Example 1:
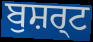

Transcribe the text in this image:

ਬੁਸ਼ਰ੍ਟ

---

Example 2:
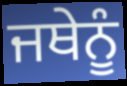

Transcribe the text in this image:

ਜਥੇਨੂੰ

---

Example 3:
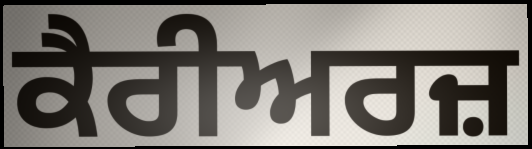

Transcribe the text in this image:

ਕੈਰੀਅਰਜ਼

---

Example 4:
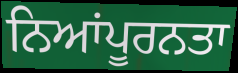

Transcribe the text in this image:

ਨਿਆਂਪੂਰਨਤਾ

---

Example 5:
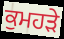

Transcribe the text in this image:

ਕੁਮਹੜੇ